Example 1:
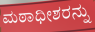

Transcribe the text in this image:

ಮಠಾಧೀಶರನ್ನು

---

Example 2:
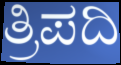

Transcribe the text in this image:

ತ್ರಿಪದಿ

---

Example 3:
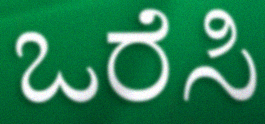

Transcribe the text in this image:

ಒರೆಸಿ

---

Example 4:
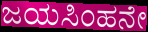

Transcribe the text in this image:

ಜಯಸಿಂಹನೇ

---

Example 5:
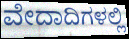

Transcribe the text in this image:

ವೇದಾದಿಗಳಲ್ಲಿ